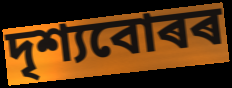
দৃশ্যবোৰৰ